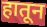
हातून